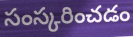
సంస్కరించడం